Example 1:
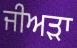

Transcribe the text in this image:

ਜੀਅੜਾ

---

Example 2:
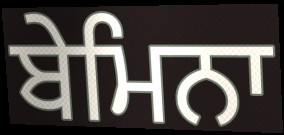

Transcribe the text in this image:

ਬੇਮਿਨਾ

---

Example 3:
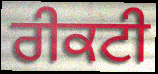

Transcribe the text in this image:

ਰੀਕਟੀ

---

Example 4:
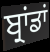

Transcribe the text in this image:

ਬ੍ਰਾਂਡਾਂ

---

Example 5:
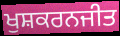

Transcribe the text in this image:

ਖੁਸ਼ਕਰਨਜੀਤ